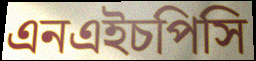
এনএইচপিসি